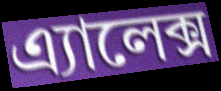
এ্যালেক্স